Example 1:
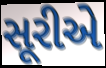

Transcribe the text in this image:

સૂરીએ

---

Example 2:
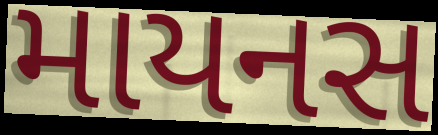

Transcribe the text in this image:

માયનસ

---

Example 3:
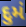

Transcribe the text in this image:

દુમં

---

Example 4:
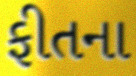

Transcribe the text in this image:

ફીતના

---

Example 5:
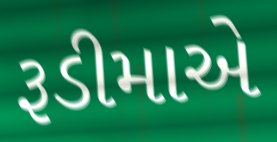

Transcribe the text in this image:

રૂડીમાએ